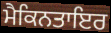
ਮੈਕਿਨਤਾਇਰ